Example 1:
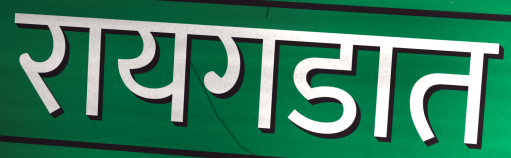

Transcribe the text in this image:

रायगडात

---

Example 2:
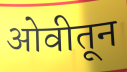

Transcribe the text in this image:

ओवीतून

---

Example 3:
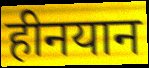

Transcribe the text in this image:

हीनयान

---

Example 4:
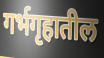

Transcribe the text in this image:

गर्भगृहातील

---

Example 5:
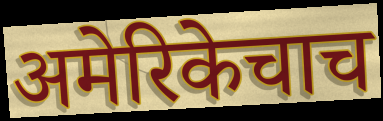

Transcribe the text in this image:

अमेरिकेचाच